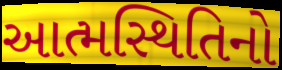
આત્મસ્થિતિનો